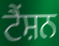
ਟੈਂਸ਼ਨ